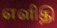
எளிதி